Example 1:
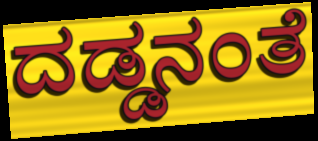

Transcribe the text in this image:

ದಡ್ಡನಂತೆ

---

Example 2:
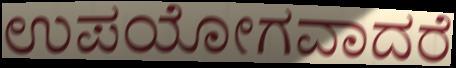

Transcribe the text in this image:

ಉಪಯೋಗವಾದರೆ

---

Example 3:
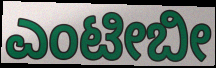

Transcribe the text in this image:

ಎಂಟೀಬೀ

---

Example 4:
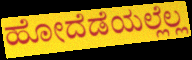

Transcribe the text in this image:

ಹೋದೆಡೆಯಲ್ಲೆಲ್ಲ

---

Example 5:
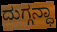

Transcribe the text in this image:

ದುಗ್ಗನ್ಧಾ